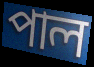
পাল